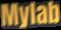
Mylab